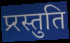
प्र्रस्तुति